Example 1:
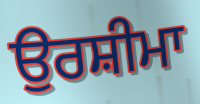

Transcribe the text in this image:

ਉਰਸ਼ੀਮਾ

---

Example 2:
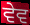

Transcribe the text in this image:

ਵੇਵ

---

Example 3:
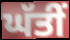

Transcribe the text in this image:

ਘੱਤੀਂ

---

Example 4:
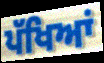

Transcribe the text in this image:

ਪੱਖਿਆਂ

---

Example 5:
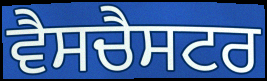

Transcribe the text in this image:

ਵੈਸਚੈਸਟਰ